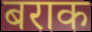
बराक